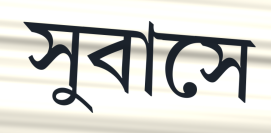
সুবাসে